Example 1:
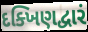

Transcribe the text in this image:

દક્ખિણદ્વારં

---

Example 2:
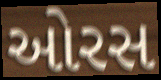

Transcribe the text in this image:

ઓરસ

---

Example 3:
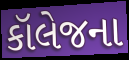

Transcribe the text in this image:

કૉલેજના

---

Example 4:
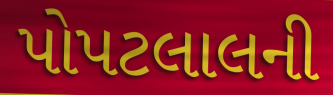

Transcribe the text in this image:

પોપટલાલની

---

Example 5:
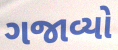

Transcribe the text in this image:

ગજાવ્યો